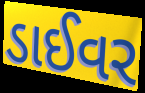
ડાઈવર